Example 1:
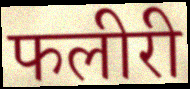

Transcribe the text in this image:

फलीरी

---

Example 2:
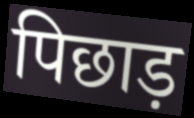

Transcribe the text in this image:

पिछाड़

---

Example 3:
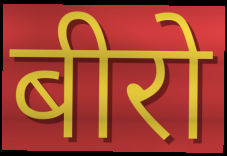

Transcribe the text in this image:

बीरो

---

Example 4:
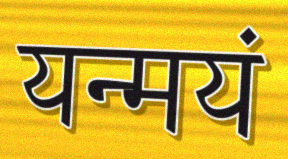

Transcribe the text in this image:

यन्मयं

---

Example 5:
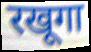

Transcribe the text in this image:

रखूगा